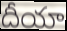
దీయా